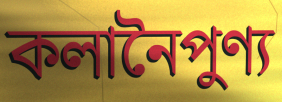
কলানৈপুণ্য